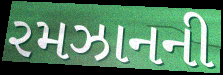
રમઝાનની